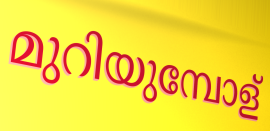
മുറിയുമ്പോള്